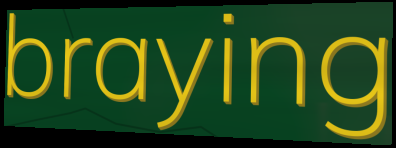
braying